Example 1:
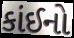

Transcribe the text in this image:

કાંઈનો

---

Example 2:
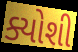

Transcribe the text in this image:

ક્યોશી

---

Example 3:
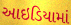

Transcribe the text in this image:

આઇડિયામાં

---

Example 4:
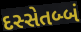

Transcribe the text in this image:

દસ્સેતબ્બં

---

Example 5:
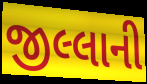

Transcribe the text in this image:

જીલ્લાની